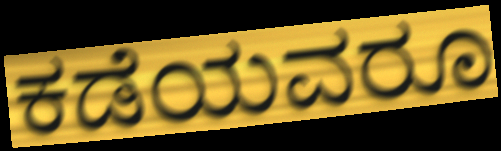
ಕಡೆಯವರೂ